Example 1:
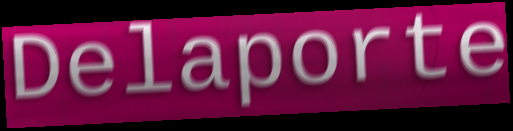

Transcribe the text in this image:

Delaporte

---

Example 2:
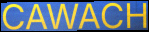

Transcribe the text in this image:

CAWACH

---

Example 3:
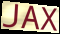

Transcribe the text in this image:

JAX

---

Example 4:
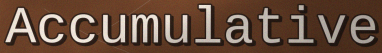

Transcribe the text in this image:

Accumulative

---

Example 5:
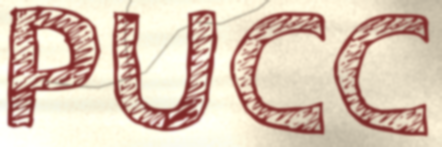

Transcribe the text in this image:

PUCC